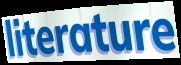
literature